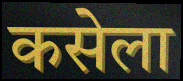
कसेला